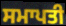
ਸਮਾਪਤੀ